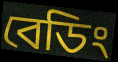
বেডিং